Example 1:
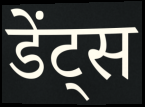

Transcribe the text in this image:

डेंट्स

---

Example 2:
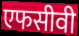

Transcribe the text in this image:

एफसीवी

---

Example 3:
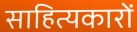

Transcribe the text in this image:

साहित्यकारों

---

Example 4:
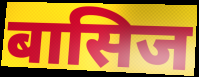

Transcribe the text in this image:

बासिज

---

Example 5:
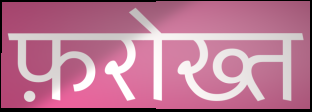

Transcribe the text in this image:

फ़रोख्त